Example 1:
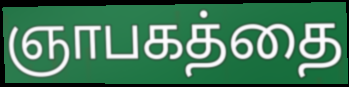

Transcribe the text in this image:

ஞாபகத்தை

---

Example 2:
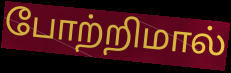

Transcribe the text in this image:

போற்றிமால்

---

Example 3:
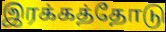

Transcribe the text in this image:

இரக்கத்தோடு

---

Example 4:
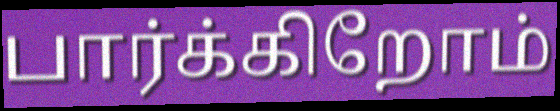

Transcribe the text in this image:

பார்க்கிறோம்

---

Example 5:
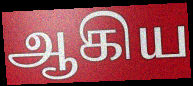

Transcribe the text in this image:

ஆகிய